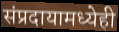
संप्रदायामध्येही